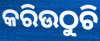
କରିଉଠୁଚି